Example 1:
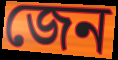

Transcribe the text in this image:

জেন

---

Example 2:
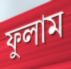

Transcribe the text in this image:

ফুলাম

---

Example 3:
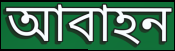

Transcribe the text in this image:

আবাহন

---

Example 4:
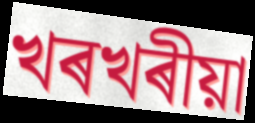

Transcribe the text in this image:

খৰখৰীয়া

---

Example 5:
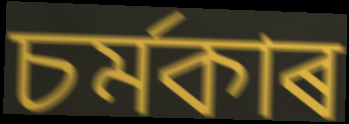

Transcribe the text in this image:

চৰ্মকাৰ